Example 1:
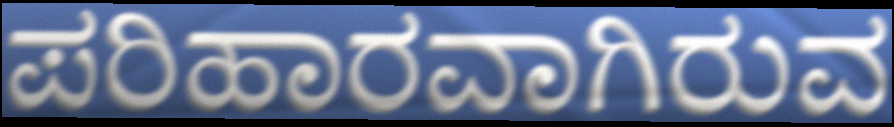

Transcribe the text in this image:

ಪರಿಹಾರವಾಗಿರುವ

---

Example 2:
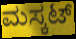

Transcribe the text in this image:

ಮಸ್ಕಟ್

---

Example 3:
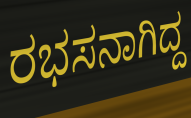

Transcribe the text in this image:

ರಭಸನಾಗಿದ್ದ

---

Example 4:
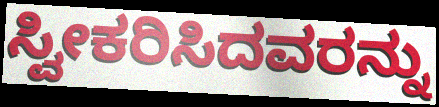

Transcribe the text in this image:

ಸ್ವೀಕರಿಸಿದವರನ್ನು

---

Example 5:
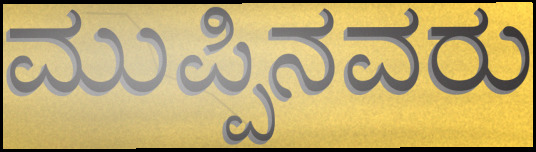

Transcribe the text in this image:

ಮುಪ್ಪಿನವರು